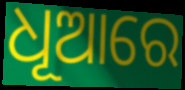
ଧୂଆରେ